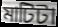
মাটিটা